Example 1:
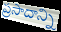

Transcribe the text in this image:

ప్రసాదాన్ని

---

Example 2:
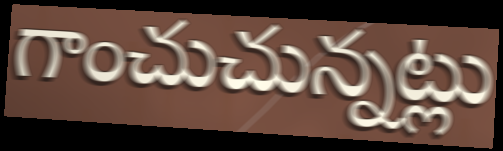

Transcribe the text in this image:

గాంచుచున్నట్లు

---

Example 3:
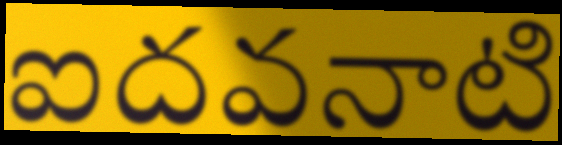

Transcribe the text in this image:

ఐదవనాటి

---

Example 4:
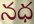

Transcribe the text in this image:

నధ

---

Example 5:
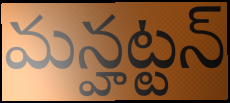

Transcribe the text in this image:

మన్హట్టన్